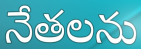
నేతలను